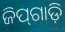
ଜିପ୍‍ଗାଡ଼ି